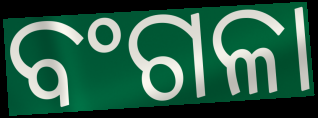
ବଂଗଳା